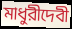
মাধুরীদেবী